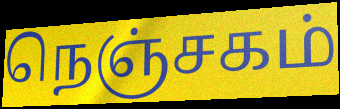
நெஞ்சகம்